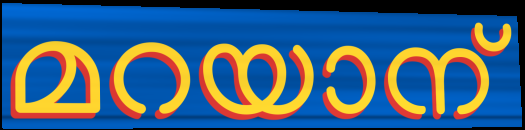
മറയാന്